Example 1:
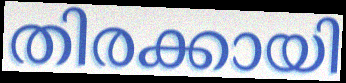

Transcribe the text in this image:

തിരക്കായി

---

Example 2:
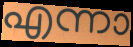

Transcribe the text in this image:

എന്നാ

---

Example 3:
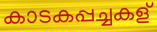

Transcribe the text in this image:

കാടകപ്പച്ചകള്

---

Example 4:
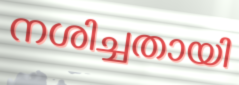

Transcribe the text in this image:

നശിച്ചതായി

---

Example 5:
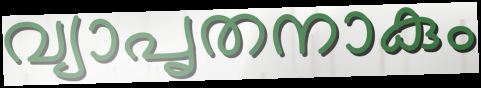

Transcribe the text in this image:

വ്യാപൃതനാകും